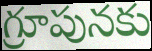
గ్రూపునకు